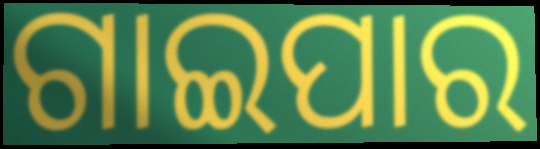
ଗାଇପାର